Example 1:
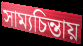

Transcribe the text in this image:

সাম্যচিন্তায়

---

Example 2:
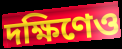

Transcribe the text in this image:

দক্ষিণেও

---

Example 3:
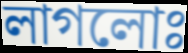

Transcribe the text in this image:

লাগলোঃ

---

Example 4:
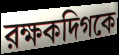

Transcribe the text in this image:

রক্ষকদিগকে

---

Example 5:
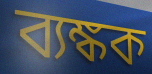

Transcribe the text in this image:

ব্যঙ্কক